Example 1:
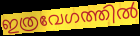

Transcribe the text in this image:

ഇത്രവേഗത്തിൽ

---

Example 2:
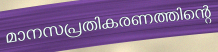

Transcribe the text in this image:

മാനസപ്രതികരണത്തിന്റെ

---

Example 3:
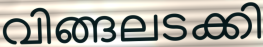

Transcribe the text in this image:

വിങ്ങലടക്കി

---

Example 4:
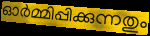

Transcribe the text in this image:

ഓർമ്മിപ്പിക്കുന്നതും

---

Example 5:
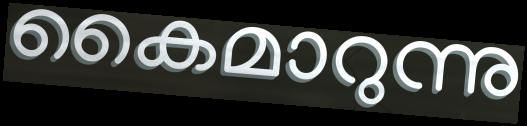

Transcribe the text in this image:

കൈമാറുന്നു